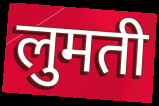
लुमती